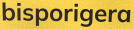
bisporigera